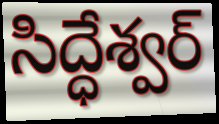
సిద్ధేశ్వర్